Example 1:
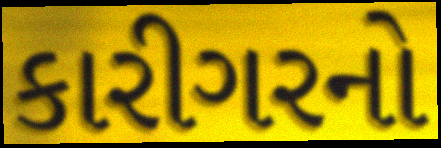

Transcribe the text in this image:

કારીગરનો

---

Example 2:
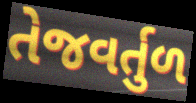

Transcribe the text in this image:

તેજવર્તુળ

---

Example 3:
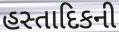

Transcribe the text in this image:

હસ્તાદિકની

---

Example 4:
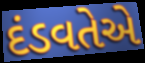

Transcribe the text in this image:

દંડવતેએ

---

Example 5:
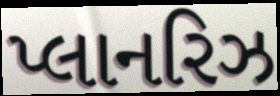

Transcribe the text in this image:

પ્લાનરિઝ